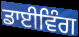
ਡਾਈਵਿੰਗ